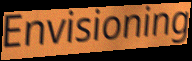
Envisioning